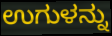
ಉಗುಳನ್ನು